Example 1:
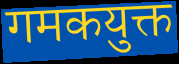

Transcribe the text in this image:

गमकयुक्त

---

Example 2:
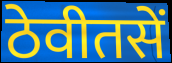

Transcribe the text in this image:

ठेवीतसें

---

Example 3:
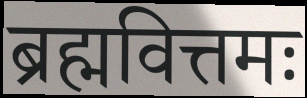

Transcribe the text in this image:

ब्रह्मवित्तमः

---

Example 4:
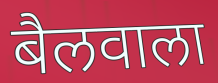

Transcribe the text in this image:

बैलवाला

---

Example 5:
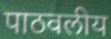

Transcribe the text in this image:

पाठवलीय